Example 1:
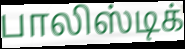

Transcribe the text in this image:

பாலிஸ்டிக்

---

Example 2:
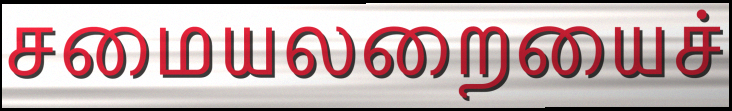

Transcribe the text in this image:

சமையலறையைச்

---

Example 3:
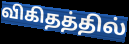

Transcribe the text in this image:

விகிதத்தில்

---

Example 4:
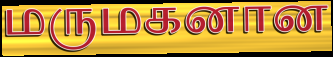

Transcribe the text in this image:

மருமகனான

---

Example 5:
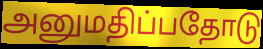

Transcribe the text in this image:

அனுமதிப்பதோடு